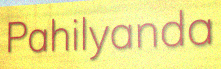
Pahilyanda